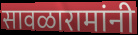
सावळारामांनी